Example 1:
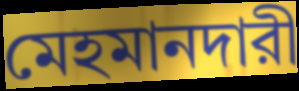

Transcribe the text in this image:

মেহমানদারী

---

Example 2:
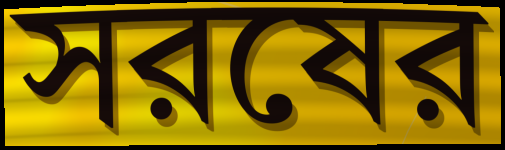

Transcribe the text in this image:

সরষের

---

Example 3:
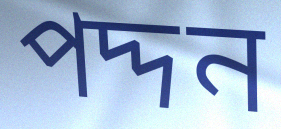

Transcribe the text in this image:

পদ্দন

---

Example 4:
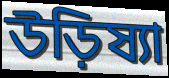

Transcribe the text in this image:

উড়িষ্যা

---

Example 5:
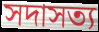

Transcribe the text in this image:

সদাসত্য